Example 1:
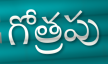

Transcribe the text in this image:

గోత్రపు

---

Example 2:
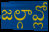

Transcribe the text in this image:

జల్గావ్లో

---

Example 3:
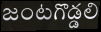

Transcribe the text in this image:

జంటగొడ్డలి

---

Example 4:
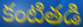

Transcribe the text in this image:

కంటితడి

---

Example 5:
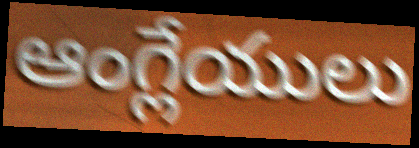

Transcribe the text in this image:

ఆంగ్లేయులు